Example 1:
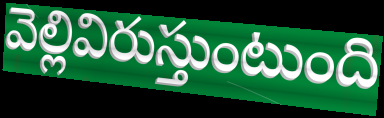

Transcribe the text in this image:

వెల్లివిరుస్తుంటుంది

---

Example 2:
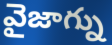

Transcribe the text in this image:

వైజాగ్ను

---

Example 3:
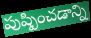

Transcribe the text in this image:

పుష్పించడాన్ని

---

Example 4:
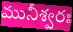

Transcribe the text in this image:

మునీశ్వరః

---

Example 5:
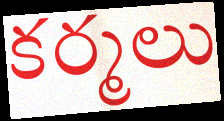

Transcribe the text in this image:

కర్మలు